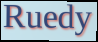
Ruedy